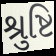
શ્રુષ્ટિ